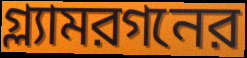
গ্ল্যামরগনের